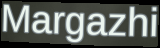
Margazhi